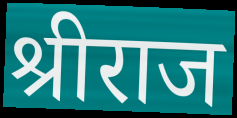
श्रीराज